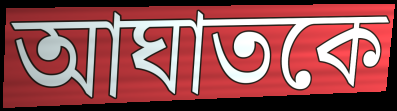
আঘাতকে